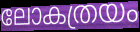
ലോകത്രയം